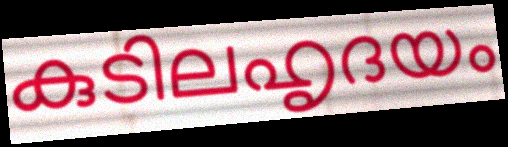
കുടിലഹൃദയം